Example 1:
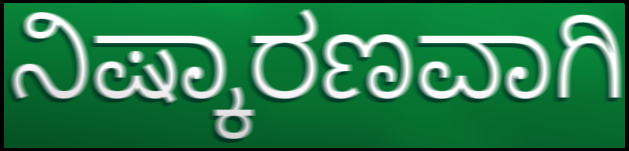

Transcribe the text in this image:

ನಿಷ್ಕಾರಣವಾಗಿ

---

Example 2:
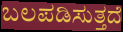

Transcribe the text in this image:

ಬಲಪಡಿಸುತ್ತದೆ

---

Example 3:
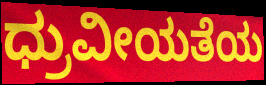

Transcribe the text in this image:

ಧ್ರುವೀಯತೆಯ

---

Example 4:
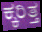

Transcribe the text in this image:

ಕ್ಕರಿತ್ತ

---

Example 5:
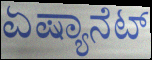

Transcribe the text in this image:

ಏಷ್ಯಾನೆಟ್